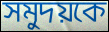
সমুদয়কে